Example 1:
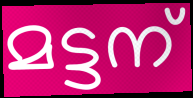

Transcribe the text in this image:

മട്ടന്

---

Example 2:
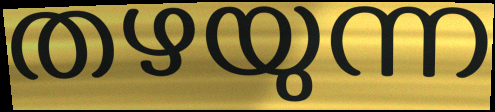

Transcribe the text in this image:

തഴയുന്ന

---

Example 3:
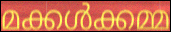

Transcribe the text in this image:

മക്കൾക്കമ്മ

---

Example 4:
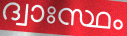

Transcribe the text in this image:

ദ്വാഃസ്ഥം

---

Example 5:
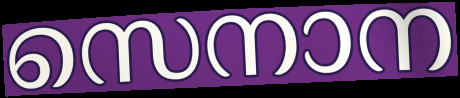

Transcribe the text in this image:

സെനാന